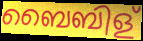
ബൈബിള്